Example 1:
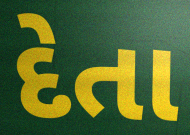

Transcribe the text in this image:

દેતા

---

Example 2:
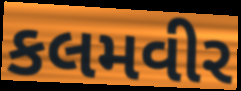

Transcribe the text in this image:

કલમવીર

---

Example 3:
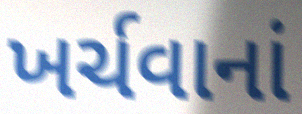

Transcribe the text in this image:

ખર્ચવાનાં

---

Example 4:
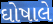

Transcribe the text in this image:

ઘોષાલે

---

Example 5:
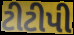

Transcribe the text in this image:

ટીટીપી